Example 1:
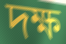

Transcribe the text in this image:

দক্ষ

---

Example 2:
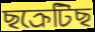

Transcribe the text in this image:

ছক্ৰেটিছ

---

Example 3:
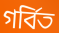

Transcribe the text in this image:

গৰ্বিত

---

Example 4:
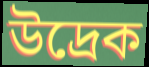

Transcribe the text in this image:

উদ্ৰেক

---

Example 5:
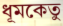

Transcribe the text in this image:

ধূমকেতু